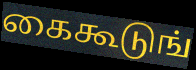
கைகூடுங்